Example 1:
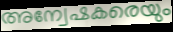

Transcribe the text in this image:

അന്വേഷകരെയും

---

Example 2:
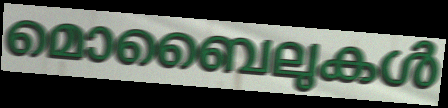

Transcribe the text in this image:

മൊബൈലുകൾ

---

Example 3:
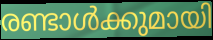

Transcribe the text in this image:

രണ്ടാൾക്കുമായി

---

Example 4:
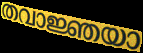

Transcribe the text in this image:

തവാജ്ഞയാ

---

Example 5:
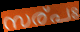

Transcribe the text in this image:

സര്പഃ